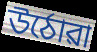
উঠোৱা